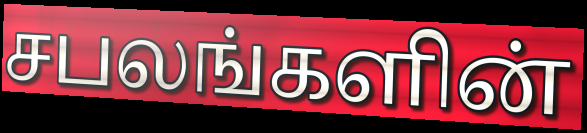
சபலங்களின்